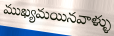
ముఖ్యమయినవాళ్ళు